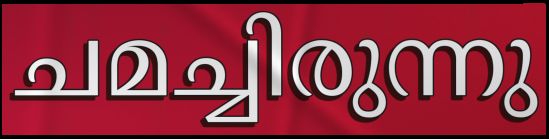
ചമച്ചിരുന്നു